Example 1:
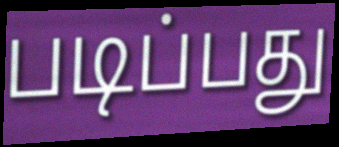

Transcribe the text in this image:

படிப்பது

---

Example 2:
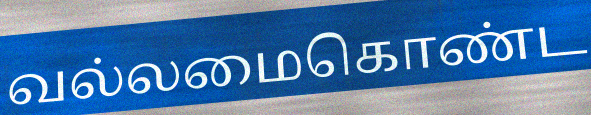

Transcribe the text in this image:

வல்லமைகொண்ட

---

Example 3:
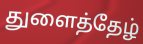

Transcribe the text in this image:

துளைத்தேழ்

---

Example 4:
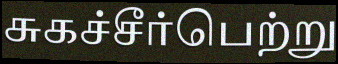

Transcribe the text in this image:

சுகச்சீர்பெற்று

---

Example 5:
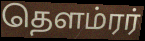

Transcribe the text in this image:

தௌம்ரர்